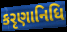
કરૃણાનિધિ